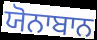
ਯੋਨਾਬਾਨ